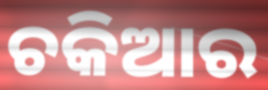
ଚକିଆର